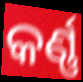
କର୍ଣ୍ଣ